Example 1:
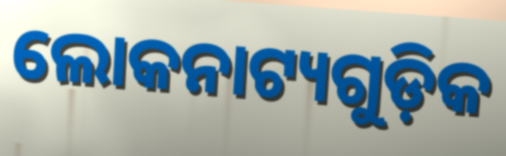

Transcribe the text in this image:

ଲୋକନାଟ୍ୟଗୁଡ଼ିକ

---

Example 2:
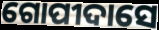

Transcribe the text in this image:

ଗୋପୀଦାସେ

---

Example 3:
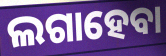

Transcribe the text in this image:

ଲଗାହେବା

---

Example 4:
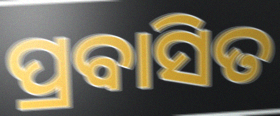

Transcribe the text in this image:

ପ୍ରବାସିତ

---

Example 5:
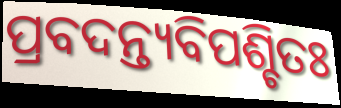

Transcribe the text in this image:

ପ୍ରବଦନ୍ତ୍ୟବିପଶ୍ଚିତଃ